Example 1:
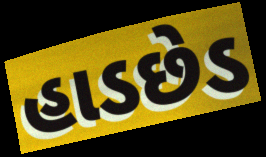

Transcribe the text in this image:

હાડછેડ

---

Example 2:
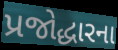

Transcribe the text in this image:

પ્રજોદ્ધારના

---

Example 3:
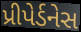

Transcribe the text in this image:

પ્રીપેર્ડનેસ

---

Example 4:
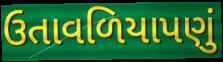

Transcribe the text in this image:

ઉતાવળિયાપણું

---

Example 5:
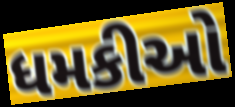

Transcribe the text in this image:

ધમકીઓ